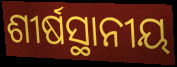
ଶୀର୍ଷସ୍ଥାନୀୟ